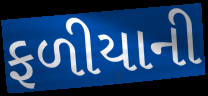
ફળીયાની